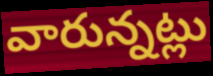
వారున్నట్లు